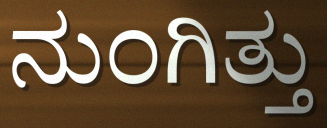
ನುಂಗಿತ್ತು